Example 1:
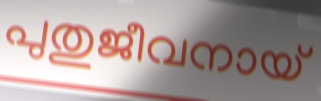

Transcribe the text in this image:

പുതുജീവനായ്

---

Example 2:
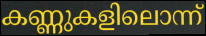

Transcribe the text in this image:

കണ്ണുകളിലൊന്ന്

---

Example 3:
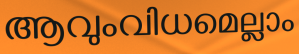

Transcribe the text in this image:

ആവുംവിധമെല്ലാം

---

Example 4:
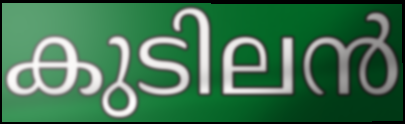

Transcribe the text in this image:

കുടിലൻ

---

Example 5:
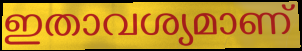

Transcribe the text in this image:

ഇതാവശ്യമാണ്